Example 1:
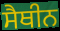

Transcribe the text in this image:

ਸੈਥੀਨ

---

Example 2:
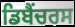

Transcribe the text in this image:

ਡਿਬੈਂਚਰਸ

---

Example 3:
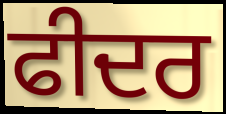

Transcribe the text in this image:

ਫੀਦਰ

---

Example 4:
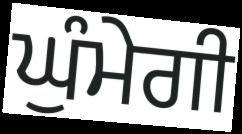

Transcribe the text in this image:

ਘੁੰਮੇਗੀ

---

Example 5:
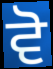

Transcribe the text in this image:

ਵੋ